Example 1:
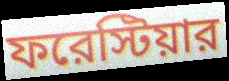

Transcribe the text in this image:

ফরেস্টিয়ার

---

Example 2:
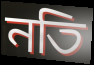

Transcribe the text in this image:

নতি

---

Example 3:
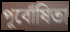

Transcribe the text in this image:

পূর্বোষিতা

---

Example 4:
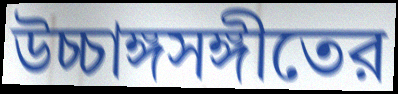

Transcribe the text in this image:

উচ্চাঙ্গসঙ্গীতের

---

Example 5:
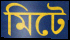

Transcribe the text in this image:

মিটে